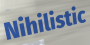
Nihilistic